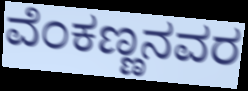
ವೆಂಕಣ್ಣನವರ